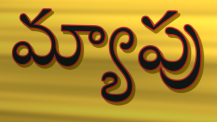
మ్యాపు